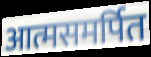
आत्मसमर्पित